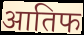
आतिफ